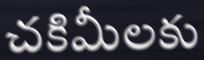
చకిమీలకు